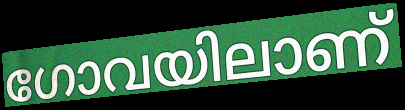
ഗോവയിലാണ്